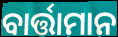
ବାର୍ତ୍ତାମାନ